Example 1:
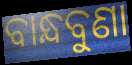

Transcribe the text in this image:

ବାନ୍ଧବୁଣା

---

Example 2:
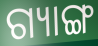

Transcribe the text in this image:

ଗ୍ୟାଙ୍ଗ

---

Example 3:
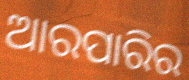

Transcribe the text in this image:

ଆରପାରିର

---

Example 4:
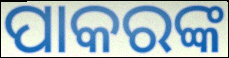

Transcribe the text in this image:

ପାକରଙ୍କ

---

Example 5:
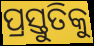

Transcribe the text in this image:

ପ୍ରସ୍ତୁତିକୁ